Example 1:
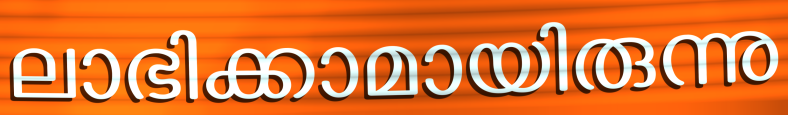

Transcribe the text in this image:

ലാഭിക്കാമായിരുന്നു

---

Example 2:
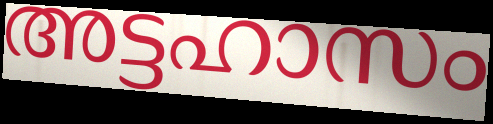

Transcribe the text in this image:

അട്ടഹാസം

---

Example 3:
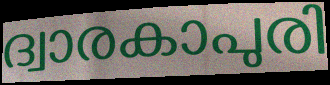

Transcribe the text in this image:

ദ്വാരകാപുരി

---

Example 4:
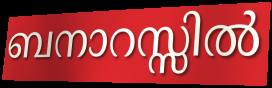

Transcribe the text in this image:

ബനാറസ്സിൽ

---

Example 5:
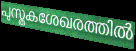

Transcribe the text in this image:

പുസ്തകശേഖരത്തിൽ